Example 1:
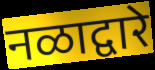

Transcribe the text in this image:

नळाद्वारे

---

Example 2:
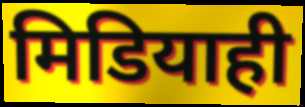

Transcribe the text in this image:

मिडियाही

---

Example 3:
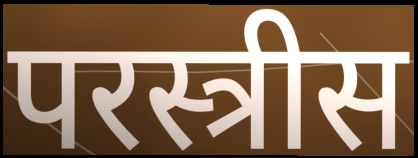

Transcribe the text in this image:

परस्त्रीस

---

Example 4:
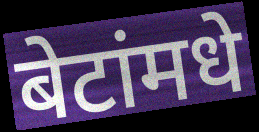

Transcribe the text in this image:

बेटांमधे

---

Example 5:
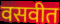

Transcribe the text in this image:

वसवीत